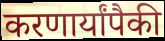
करणार्यांपैकी